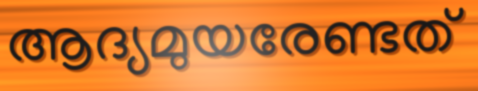
ആദ്യമുയരേണ്ടത്